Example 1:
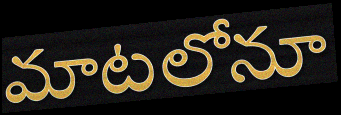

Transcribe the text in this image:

మాటలోనూ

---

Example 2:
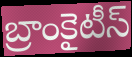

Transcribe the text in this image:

బ్రాంకైటీస్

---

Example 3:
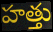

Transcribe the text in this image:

హత్తు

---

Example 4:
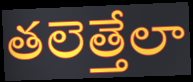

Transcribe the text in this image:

తలెత్తేలా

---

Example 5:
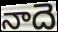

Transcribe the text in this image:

నాదె